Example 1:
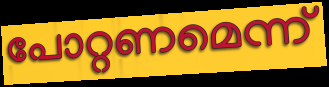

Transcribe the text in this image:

പോറ്റണമെന്ന്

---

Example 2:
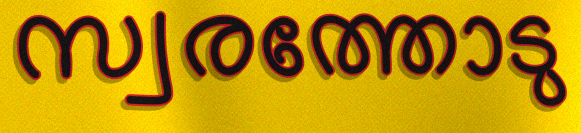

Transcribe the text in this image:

സ്വരത്തോടു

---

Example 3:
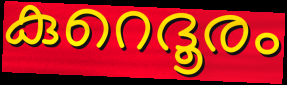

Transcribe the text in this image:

കുറെദൂരം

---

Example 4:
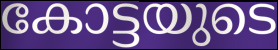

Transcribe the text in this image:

കോട്ടയുടെ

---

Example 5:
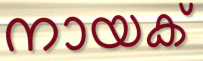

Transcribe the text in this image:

നായക്